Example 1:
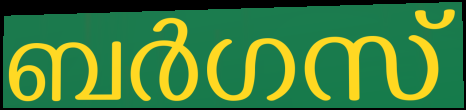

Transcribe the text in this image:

ബർഗസ്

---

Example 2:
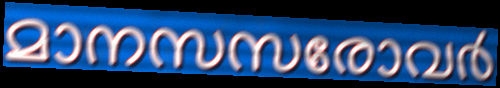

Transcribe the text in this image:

മാനസസരോവർ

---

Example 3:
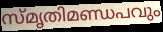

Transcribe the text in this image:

സ്മൃതിമണ്ഡപവും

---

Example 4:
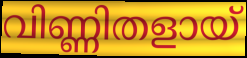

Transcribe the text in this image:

വിണ്ണിതളായ്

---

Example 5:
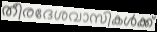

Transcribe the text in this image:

തീരദേശവാസികൾക്ക്